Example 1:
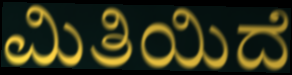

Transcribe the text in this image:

ಮಿತಿಯಿದೆ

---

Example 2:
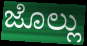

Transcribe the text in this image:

ಜೊಲ್ಲು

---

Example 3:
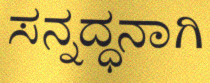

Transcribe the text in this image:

ಸನ್ನದ್ಧನಾಗಿ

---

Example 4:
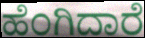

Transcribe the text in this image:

ಹೆಂಗಿದಾರೆ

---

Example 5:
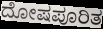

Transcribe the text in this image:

ದೋಷಪೂರಿತ